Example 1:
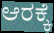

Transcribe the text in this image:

ಆರಕ್ಕೆ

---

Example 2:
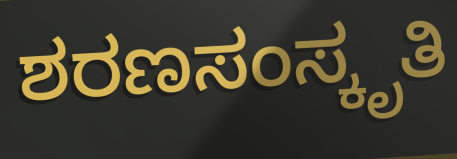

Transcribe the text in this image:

ಶರಣಸಂಸ್ಕೃತಿ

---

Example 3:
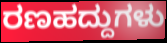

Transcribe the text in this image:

ರಣಹದ್ದುಗಳು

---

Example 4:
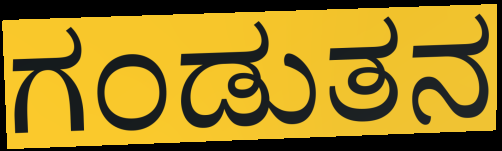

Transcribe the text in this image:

ಗಂಡುತನ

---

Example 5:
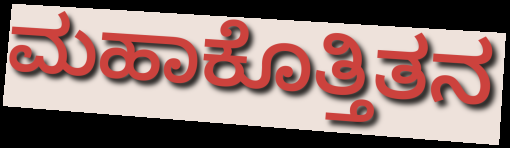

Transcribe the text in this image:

ಮಹಾಕೊತ್ತಿತನ